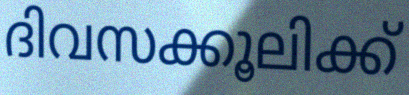
ദിവസക്കൂലിക്ക്